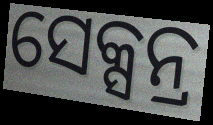
ସେକ୍ସନ୍ର